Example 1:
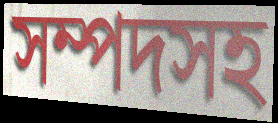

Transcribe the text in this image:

সম্পদসহ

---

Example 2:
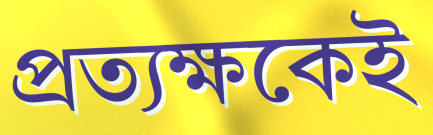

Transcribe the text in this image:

প্রত্যক্ষকেই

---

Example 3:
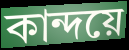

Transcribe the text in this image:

কান্দয়ে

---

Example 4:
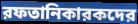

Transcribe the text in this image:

রফতানিকারকদের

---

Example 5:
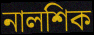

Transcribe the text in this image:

নালশিক